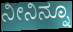
ನೀನಿನ್ನೂ